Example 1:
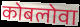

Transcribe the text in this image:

कोबलोवा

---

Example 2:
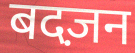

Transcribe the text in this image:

बदज़न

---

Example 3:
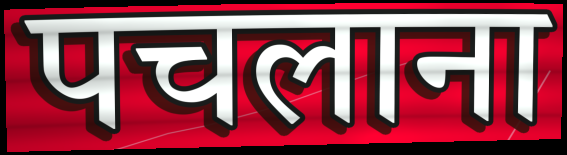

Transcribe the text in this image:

पचलाना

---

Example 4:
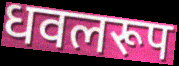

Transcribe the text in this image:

धवलरूप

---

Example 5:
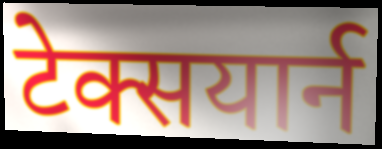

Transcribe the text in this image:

टेक्सयार्न